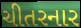
ચીતરનાર